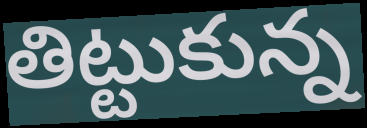
తిట్టుకున్న